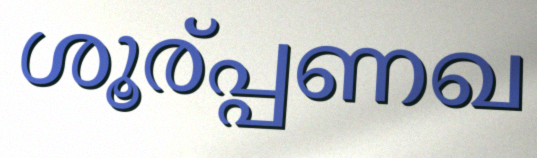
ശൂര്പ്പണഖ